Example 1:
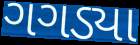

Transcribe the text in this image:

ગગડ્યા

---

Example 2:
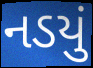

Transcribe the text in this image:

નડયું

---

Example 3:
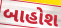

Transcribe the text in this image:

બાહોશ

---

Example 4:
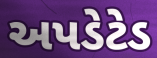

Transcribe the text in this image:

અપડેટેડ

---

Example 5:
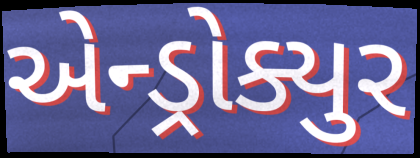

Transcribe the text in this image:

એન્ડ્રોક્યુર